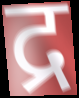
द्र